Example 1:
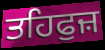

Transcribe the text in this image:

ਤਹਿਫੁਜ਼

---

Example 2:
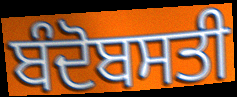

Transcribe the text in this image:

ਬੰਦੋਬਸਤੀ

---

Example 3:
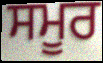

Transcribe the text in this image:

ਸਮੂਰ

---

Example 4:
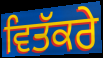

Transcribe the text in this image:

ਵਿਤੱਕਰੇ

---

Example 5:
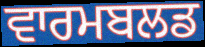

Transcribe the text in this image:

ਵਾਰਮਬਲਡ